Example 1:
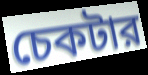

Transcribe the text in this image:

চেকটার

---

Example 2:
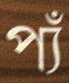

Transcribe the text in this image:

প্যঁ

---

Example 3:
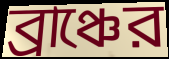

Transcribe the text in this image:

ব্রাঞ্চের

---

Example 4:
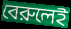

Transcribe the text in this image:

বেরুলেই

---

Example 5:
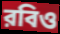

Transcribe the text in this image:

রবিও